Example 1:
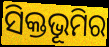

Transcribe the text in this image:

ସିକ୍ତଭୂମିର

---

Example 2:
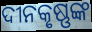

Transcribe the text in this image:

ଦୀନକୃଷ୍ଣଙ୍କ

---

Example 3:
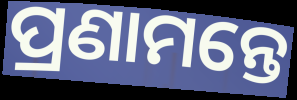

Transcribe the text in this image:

ପ୍ରଣାମନ୍ତେ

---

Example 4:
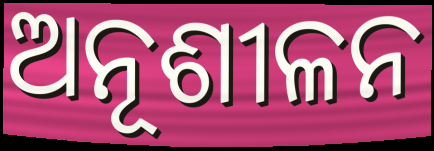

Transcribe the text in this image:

ଅନୂଶୀଳନ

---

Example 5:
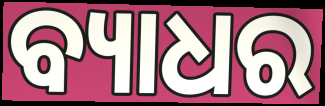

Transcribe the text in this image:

ବ୍ୟାଧର